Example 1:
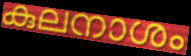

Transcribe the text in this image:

കുലനാശം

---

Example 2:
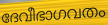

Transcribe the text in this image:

ദേവീഭാഗവതം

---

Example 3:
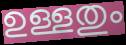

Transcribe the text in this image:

ഉള്ളതും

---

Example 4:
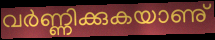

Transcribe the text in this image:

വർണ്ണിക്കുകയാണു്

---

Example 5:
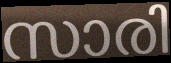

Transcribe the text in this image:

സാരി